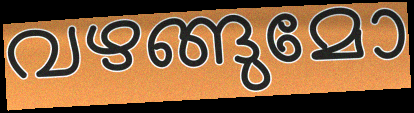
വഴങ്ങുമോ